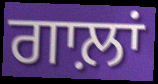
ਗਾਲ਼ਾਂ